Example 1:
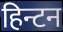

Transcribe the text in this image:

हिन्टन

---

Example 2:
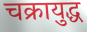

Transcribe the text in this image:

चक्रायुद्ध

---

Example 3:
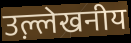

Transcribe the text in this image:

उल्ल़ेखनीय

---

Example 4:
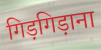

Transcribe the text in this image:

गिड़गिड़ाना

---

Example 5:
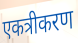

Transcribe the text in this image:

एकत्रीकरण